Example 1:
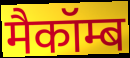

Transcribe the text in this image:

मैकॉम्ब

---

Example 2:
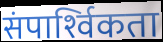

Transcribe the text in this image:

संपार्श्विकता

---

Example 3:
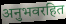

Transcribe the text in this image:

अनुभवरहित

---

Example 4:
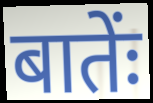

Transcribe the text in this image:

बातेंः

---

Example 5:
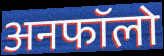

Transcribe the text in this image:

अनफॉलो